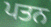
ਪਤਨ